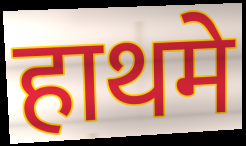
हाथमे